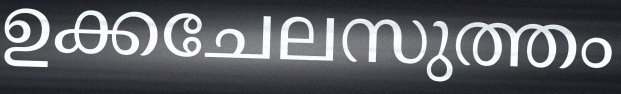
ഉക്കചേലസുത്തം